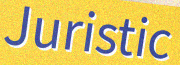
Juristic